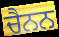
ਚੈਨਨ